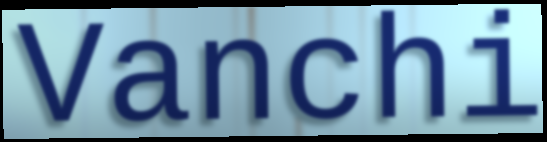
Vanchi